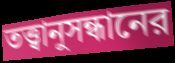
তত্ত্বানুসন্ধানের